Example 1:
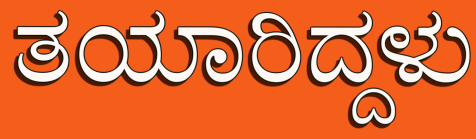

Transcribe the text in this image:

ತಯಾರಿದ್ದಳು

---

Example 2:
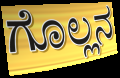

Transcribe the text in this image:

ಗೊಲ್ಲನ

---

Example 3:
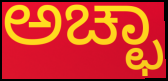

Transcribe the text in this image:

ಅಚ್ಛಾ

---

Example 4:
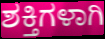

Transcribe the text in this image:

ಶಕ್ತಿಗಳಾಗಿ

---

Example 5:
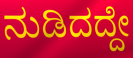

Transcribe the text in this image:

ನುಡಿದದ್ದೇ